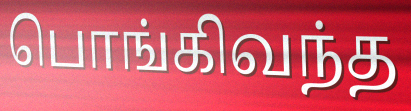
பொங்கிவந்த